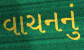
વાચનનું